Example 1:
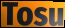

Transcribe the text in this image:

Tosu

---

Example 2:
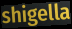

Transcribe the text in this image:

shigella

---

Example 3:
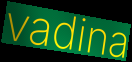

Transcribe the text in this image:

vadina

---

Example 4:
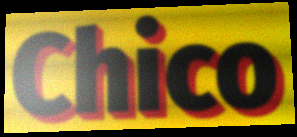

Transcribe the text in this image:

Chico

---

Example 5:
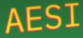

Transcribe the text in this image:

AESI